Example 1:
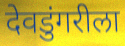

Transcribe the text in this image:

देवडुंगरीला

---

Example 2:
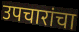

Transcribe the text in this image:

उपचारांचा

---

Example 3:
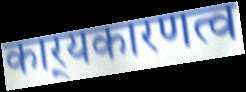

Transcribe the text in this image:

कार्यकारणत्व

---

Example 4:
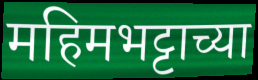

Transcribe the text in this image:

महिमभट्टाच्या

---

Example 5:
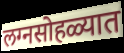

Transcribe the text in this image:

लग्नसोहळ्यात